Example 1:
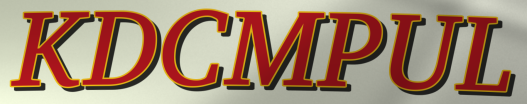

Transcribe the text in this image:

KDCMPUL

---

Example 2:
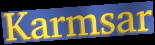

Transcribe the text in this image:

Karmsar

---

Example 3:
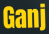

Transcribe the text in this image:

Ganj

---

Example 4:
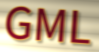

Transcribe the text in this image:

GML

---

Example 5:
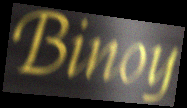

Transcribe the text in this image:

Binoy